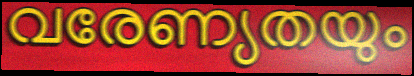
വരേണ്യതയും